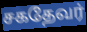
சகதேவர்